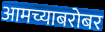
आमच्याबरोबर